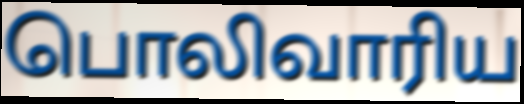
பொலிவாரிய